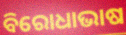
ବିରୋଧାଭାଷ